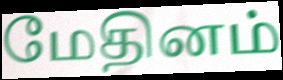
மேதினம்